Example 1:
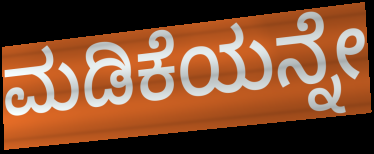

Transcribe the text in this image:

ಮಡಿಕೆಯನ್ನೇ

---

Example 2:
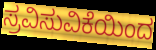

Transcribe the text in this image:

ಸ್ರವಿಸುವಿಕೆಯಿಂದ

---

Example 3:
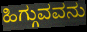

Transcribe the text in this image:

ಹಿಗ್ಗುವವನು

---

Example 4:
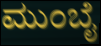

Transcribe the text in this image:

ಮುಂಬೈ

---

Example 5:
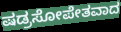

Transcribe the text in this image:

ಷಡ್ರಸೋಪೇತವಾದ